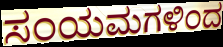
ಸಂಯಮಗಳಿಂದ